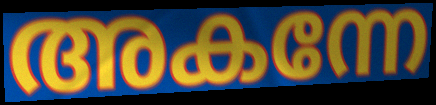
അകന്നേ